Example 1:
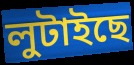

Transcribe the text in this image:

লুটাইছে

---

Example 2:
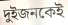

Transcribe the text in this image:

দুইজনকেই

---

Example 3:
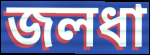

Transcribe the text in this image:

জলধা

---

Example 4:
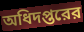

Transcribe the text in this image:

অধিদপ্তরের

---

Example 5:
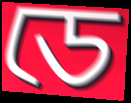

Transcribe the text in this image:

ডে